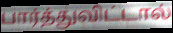
பார்த்துவிட்டால்